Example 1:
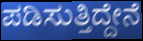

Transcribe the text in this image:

ಪಡಿಸುತ್ತಿದ್ದೇನೆ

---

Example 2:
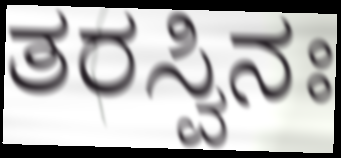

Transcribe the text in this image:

ತರಸ್ವಿನಃ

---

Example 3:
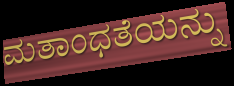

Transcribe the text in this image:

ಮತಾಂಧತೆಯನ್ನು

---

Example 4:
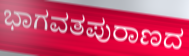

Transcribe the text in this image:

ಭಾಗವತಪುರಾಣದ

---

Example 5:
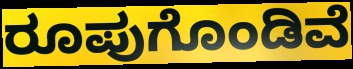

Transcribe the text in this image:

ರೂಪುಗೊಂಡಿವೆ